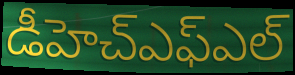
డీహెచ్ఎఫ్ఎల్